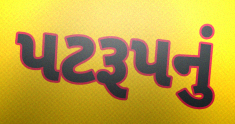
પટરૂપનું